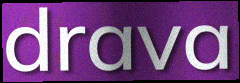
drava